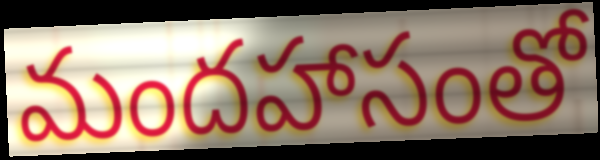
మందహాసంతో